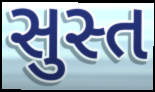
સુસ્ત